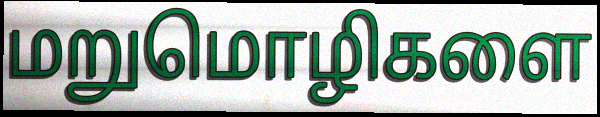
மறுமொழிகளை